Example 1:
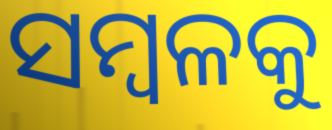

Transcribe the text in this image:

ସମ୍ବଳକୁ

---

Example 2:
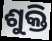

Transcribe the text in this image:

ଶୁକ୍ତି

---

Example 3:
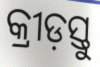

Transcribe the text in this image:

କ୍ରୀଡ଼ସ୍ତୁ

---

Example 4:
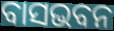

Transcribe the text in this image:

ବାସଭବନ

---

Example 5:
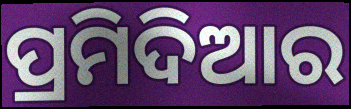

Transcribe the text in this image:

ପ୍ରମିଦିଆର